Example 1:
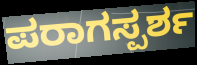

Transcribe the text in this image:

ಪರಾಗಸ್ಪರ್ಶ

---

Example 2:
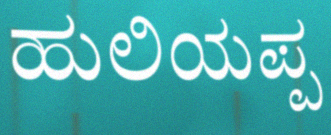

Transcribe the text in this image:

ಹುಲಿಯಪ್ಪ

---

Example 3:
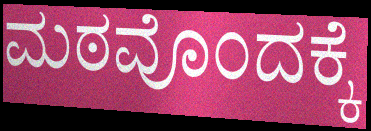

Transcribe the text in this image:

ಮಠವೊಂದಕ್ಕೆ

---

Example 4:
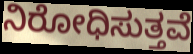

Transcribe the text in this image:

ನಿರೋಧಿಸುತ್ತವೆ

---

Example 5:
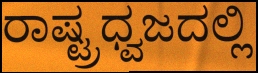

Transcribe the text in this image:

ರಾಷ್ಟ್ರಧ್ವಜದಲ್ಲಿ